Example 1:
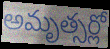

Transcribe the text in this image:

అమృత్సర్లో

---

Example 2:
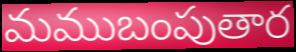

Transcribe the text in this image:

మముబంపుతార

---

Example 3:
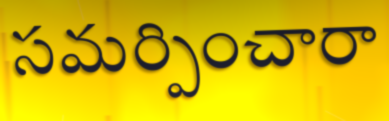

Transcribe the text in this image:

సమర్పించారా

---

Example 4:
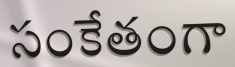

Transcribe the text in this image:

సంకేతంగా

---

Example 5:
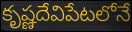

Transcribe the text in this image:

కృష్ణదేవిపేటలోనే